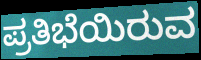
ಪ್ರತಿಭೆಯಿರುವ